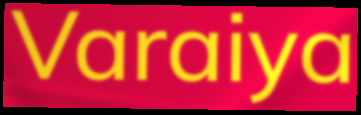
Varaiya